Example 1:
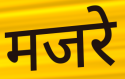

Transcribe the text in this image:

मजरे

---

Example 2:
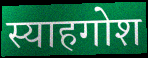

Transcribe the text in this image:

स्याहगोश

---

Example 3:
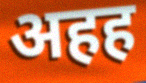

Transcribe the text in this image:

अहह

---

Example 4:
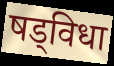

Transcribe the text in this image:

षड्विधा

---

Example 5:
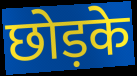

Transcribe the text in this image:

छोड़के